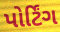
પોર્ટિંગ